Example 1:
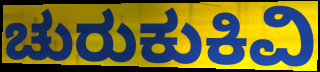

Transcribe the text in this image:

ಚುರುಕುಕಿವಿ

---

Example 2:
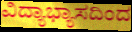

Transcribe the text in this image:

ವಿದ್ಯಾಭ್ಯಾಸದಿಂದ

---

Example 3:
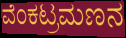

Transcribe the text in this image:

ವೆಂಕಟ್ರಮಣನ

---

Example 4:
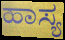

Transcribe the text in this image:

ಹಾಸ್ಯ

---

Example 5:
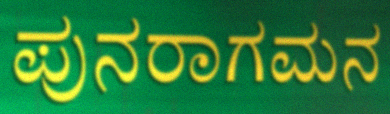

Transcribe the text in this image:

ಪುನರಾಗಮನ